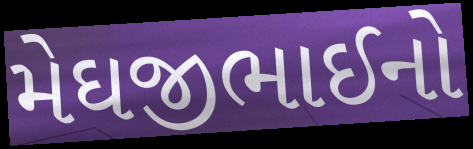
મેઘજીભાઈનો